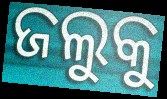
ଜଲୁକୁ